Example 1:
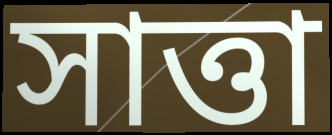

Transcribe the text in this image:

সাত্তা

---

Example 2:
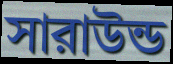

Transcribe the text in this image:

সারাউন্ড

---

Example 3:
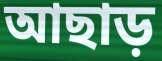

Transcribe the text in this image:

আছাড়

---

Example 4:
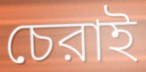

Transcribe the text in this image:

চেরাই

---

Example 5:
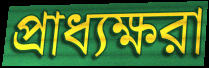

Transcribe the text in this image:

প্রাধ্যক্ষরা